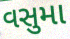
વસુમા